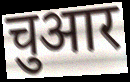
चुआर